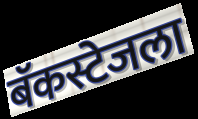
बॅकस्टेजला